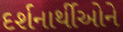
દર્શનાર્થીઓને